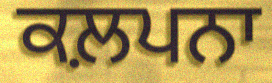
ਕਲ਼ਪਨਾ